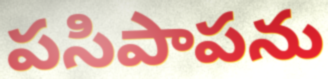
పసిపాపను